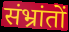
संभ्रांतों